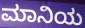
ಮಾನಿಯ